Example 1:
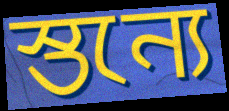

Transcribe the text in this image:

স্তন্যে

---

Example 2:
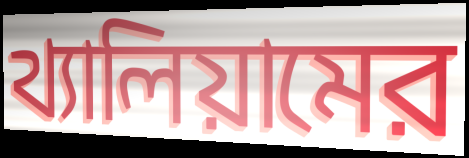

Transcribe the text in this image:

থ্যালিয়ামের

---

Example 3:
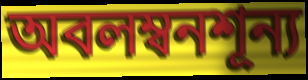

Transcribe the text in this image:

অবলম্বনশূন্য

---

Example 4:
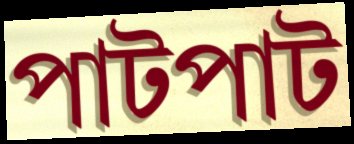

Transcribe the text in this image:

পাটপাট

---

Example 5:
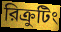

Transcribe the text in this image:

রিক্রুটিং